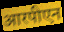
आरपीएन